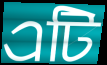
এটি